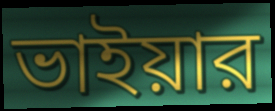
ভাইয়ার